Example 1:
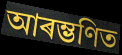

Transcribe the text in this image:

আৰম্ভণিত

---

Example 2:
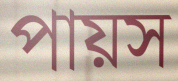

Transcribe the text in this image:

পায়স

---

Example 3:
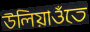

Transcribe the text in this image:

উলিয়াওঁতে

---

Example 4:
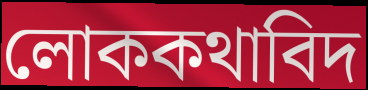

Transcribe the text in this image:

লোককথাবিদ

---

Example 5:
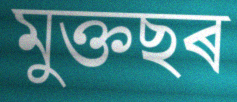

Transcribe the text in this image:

মুক্তছৰ